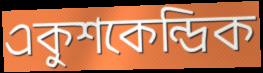
একুশকেন্দ্রিক